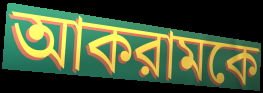
আকরামকে